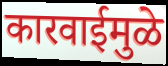
कारवाईमुळे